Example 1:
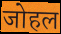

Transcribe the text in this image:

जोहल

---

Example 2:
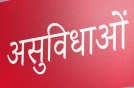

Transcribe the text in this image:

असुविधाओं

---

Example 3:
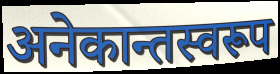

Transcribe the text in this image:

अनेकान्तस्वरूप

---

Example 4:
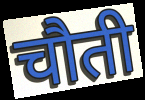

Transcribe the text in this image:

चौती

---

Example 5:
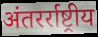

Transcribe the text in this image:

अंतरर्राष्ट्रीय